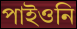
পাইওনি